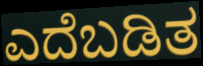
ಎದೆಬಡಿತ